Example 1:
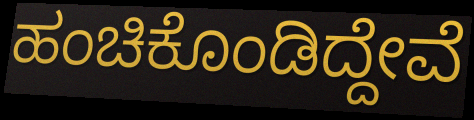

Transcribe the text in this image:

ಹಂಚಿಕೊಂಡಿದ್ದೇವೆ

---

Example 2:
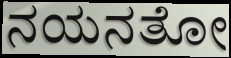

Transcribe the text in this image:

ನಯನತೋ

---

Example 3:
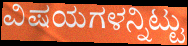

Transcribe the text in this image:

ವಿಷಯಗಳನ್ನಿಟ್ಟು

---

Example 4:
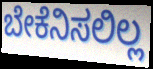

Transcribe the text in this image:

ಬೇಕೆನಿಸಲಿಲ್ಲ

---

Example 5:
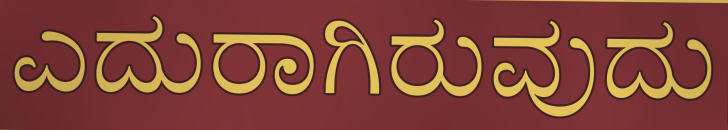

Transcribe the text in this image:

ಎದುರಾಗಿರುವುದು